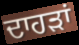
ਦਾਹੜਾਂ